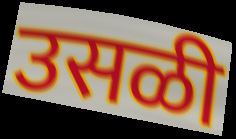
उसळी